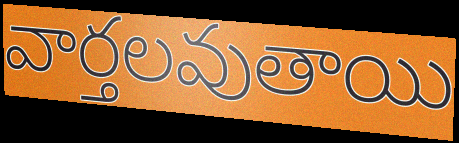
వార్తలవుతాయి